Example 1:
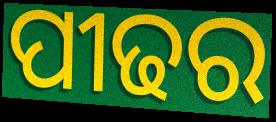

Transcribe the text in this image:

ପୀଢର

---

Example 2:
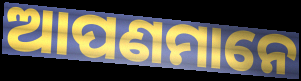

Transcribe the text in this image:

ଆପଣମାନେ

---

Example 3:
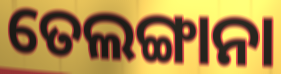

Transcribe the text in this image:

ତେଲଙ୍ଗାନା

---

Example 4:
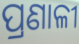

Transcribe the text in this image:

ପ୍ରଣାଳୀ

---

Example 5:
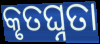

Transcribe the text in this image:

କୃତଘ୍ନତା